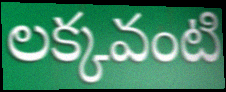
లక్కవంటి